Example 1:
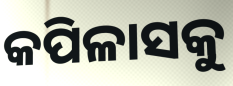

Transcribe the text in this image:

କପିଳାସକୁ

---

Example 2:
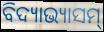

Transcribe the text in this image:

ବିଦ୍ୟାଭ୍ୟାସମ୍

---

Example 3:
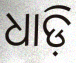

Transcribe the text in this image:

ଧାଡ଼ି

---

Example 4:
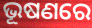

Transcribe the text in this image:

ଭୂଷଣରେ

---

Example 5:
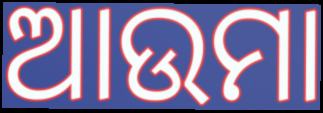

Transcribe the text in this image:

ଆଉମା